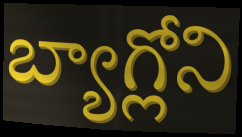
బ్యాగ్లోని